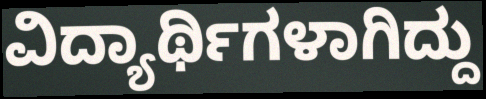
ವಿದ್ಯಾರ್ಥಿಗಳಾಗಿದ್ದು